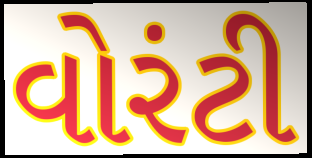
વોરંટી